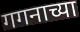
गगनाच्या